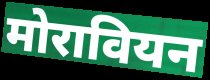
मोरावियन